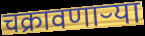
चक्रावणाऱ्या